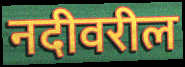
नदीवरील